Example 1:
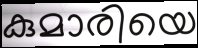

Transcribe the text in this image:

കുമാരിയെ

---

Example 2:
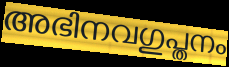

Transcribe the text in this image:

അഭിനവഗുപ്തനം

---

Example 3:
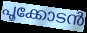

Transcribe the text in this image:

പൂക്കോടൻ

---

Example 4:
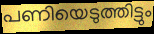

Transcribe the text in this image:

പണിയെടുത്തിട്ടും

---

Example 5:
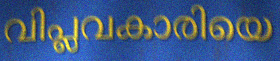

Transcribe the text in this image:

വിപ്ലവകാരിയെ